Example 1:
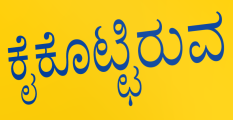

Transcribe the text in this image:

ಕೈಕೊಟ್ಟಿರುವ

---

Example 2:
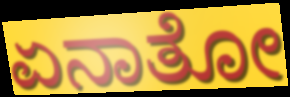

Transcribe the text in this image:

ಏನಾತೋ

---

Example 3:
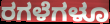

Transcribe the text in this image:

ರಗಳೆಗಳೂ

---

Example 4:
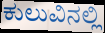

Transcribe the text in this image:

ಕುಲುವಿನಲ್ಲಿ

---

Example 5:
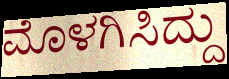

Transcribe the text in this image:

ಮೊಳಗಿಸಿದ್ದು